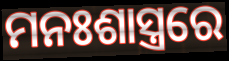
ମନଃଶାସ୍ତ୍ରରେ